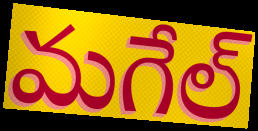
మగేల్